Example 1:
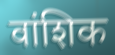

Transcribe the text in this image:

वांशिक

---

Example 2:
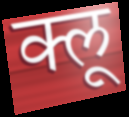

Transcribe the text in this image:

क्लू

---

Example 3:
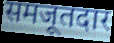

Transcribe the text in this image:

समजूतदार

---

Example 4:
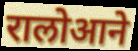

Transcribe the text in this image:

रालोआने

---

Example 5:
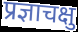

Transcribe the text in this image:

प्रज्ञाचक्षु